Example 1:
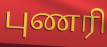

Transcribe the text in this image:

புணரி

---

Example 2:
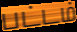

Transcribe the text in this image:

பட்டம்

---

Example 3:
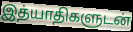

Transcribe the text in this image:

இத்யாதிகளுடன்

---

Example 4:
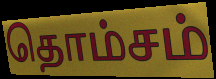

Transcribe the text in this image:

தொம்சம்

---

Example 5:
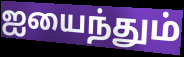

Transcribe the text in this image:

ஐயைந்தும்